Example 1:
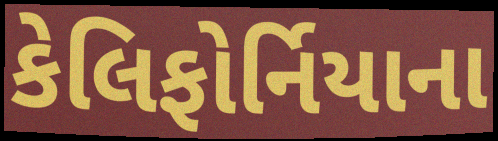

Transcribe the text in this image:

કેલિફોર્નિયાના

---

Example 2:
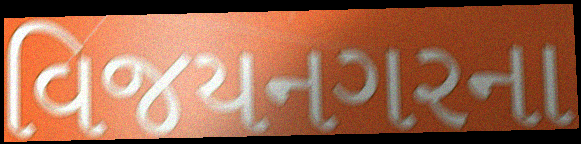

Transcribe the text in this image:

વિજયનગરના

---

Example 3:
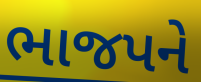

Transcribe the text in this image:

ભાજપને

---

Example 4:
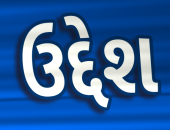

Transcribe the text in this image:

ઉદ્દેશ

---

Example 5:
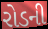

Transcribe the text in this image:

રોડની